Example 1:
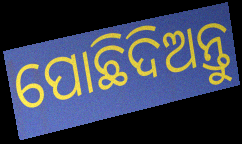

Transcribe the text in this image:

ପୋଛିଦିଅନ୍ତୁ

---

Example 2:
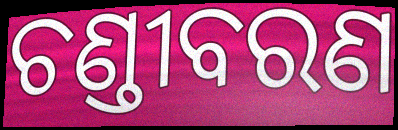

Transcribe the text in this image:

ଚଣ୍ଡୀବରଣ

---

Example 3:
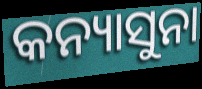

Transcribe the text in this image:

କନ୍ୟାସୁନା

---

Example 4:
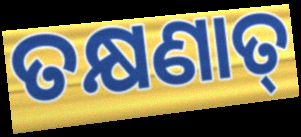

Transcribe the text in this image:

ତକ୍ଷଣାତ୍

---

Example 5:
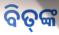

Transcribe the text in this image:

ବିତ୍‌ଙ୍କ